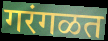
गरंगळत